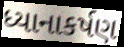
ધ્યાનાકર્ષણ